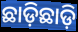
ଛାଡ଼ିଛାଡ଼ି